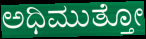
ಅಧಿಮುತ್ತೋ